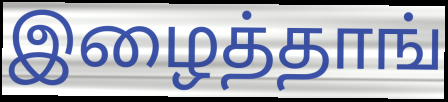
இழைத்தாங்